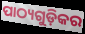
ପାଠ୍ୟଗୁଡ଼ିକର